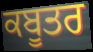
ਕਬੂਤਰ